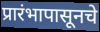
प्रारंभापासूनचे